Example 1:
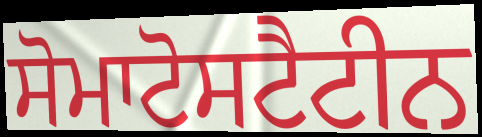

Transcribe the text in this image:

ਸੋਮਾਟੋਸਟੈਟੀਨ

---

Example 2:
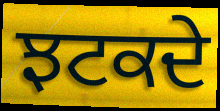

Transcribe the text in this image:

ਝਟਕਦੇ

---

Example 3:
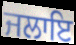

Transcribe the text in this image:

ਜਲਾਇ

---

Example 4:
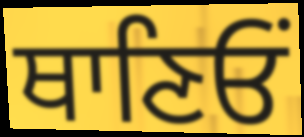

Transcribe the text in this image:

ਥਾਣਿਓਂ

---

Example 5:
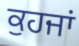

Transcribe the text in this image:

ਕੁਹਜਾਂ